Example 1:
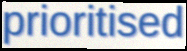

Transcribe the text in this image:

prioritised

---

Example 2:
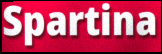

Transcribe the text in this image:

Spartina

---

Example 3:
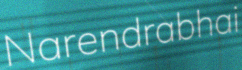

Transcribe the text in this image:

Narendrabhai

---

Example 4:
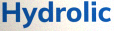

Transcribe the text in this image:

Hydrolic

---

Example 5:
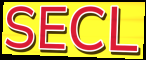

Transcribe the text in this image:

SECL